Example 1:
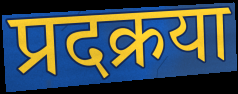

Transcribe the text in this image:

प्रदक्रया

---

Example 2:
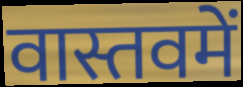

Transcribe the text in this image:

वास्तवमें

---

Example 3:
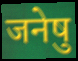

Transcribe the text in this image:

जनेषु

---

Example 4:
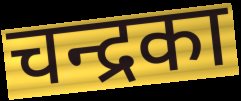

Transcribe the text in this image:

चन्द्रका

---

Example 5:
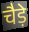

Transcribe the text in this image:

चैड़े